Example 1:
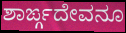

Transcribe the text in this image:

ಶಾರ್ಙ್ಗದೇವನೂ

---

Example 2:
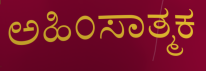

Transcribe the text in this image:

ಅಹಿಂಸಾತ್ಮಕ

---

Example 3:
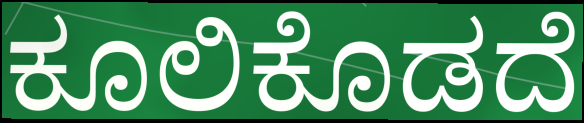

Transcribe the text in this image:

ಕೂಲಿಕೊಡದೆ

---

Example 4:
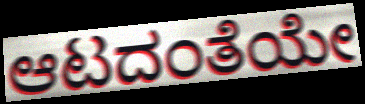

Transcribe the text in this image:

ಆಟದಂತೆಯೇ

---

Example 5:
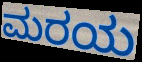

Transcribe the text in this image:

ಮರಯ